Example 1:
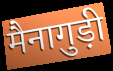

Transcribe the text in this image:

मैनागुड़ी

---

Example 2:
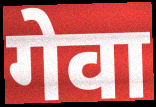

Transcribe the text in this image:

गेवा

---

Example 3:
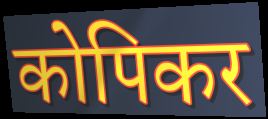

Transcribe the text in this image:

कोपिकर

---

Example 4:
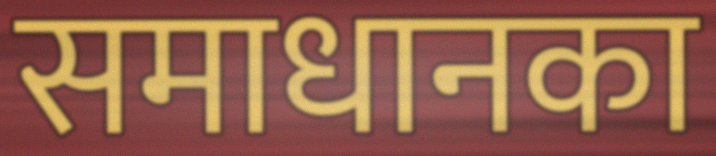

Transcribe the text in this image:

समाधानका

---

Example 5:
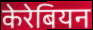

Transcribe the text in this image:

केरेबियन